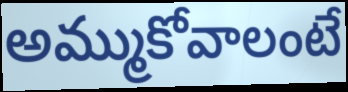
అమ్ముకోవాలంటే